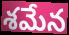
శమేన